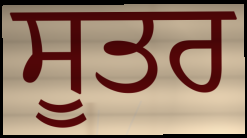
ਸੂਤਰ